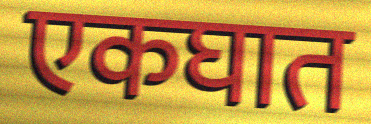
एकघात